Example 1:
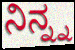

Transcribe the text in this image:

ನಿನ್ನ್ನ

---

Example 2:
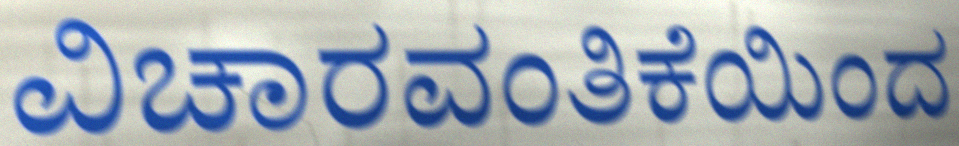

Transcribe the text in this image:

ವಿಚಾರವಂತಿಕೆಯಿಂದ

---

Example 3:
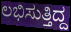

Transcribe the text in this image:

ಲಭಿಸುತ್ತಿದ್ದ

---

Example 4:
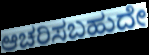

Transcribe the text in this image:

ಆಚರಿಸಬಹುದೇ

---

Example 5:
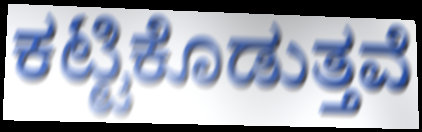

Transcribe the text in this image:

ಕಟ್ಟಿಕೊಡುತ್ತವೆ